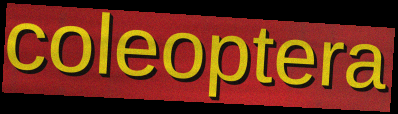
coleoptera